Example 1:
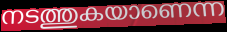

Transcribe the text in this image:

നടത്തുകയാണെന്ന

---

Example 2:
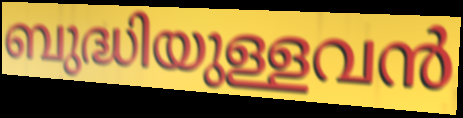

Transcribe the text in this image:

ബുദ്ധിയുള്ളവൻ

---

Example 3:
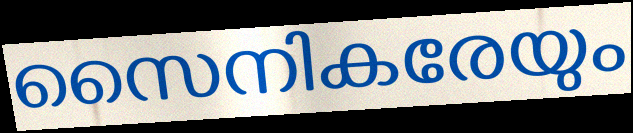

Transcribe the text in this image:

സൈനികരേയും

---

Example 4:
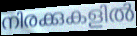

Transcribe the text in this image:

നിരക്കുകളിൽ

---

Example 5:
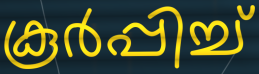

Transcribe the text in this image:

കൂർപ്പിച്ച്